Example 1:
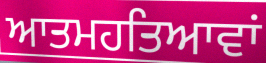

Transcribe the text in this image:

ਆਤਮਹਤਿਆਵਾਂ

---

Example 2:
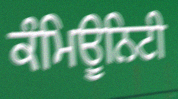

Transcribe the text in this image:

ਕੰਮਿਊਨਿਟੀ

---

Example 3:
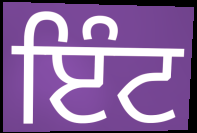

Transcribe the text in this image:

ਇੰਟ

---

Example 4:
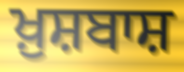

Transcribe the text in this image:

ਖ਼ੁਸ਼ਬਾਸ਼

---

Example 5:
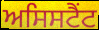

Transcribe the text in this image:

ਅਸਿਸਟੈਂਟ